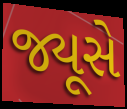
જ્યૂસે